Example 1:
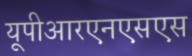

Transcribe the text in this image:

यूपीआरएनएसएस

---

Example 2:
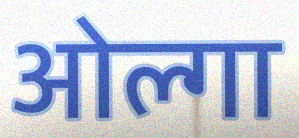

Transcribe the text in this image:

ओल्गा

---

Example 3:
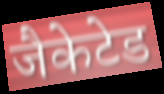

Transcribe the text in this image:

जैकेटेड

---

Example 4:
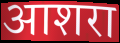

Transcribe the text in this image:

आशरा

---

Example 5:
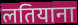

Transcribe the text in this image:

लतियाना